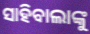
ସାହିବାଲାଙ୍କୁ